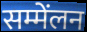
सम्मेंलन